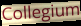
Collegium